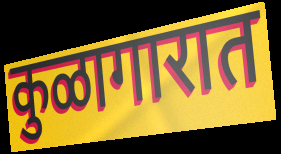
कुळागारात